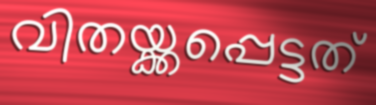
വിതയ്ക്കപ്പെട്ടത്